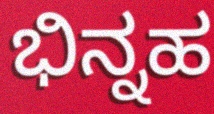
ಭಿನ್ನಹ